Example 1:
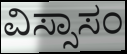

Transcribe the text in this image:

ವಿಸ್ಸಾಸಂ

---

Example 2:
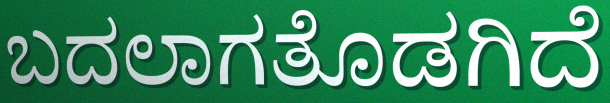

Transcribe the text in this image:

ಬದಲಾಗತೊಡಗಿದೆ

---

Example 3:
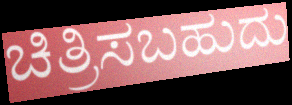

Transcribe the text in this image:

ಚಿತ್ರಿಸಬಹುದು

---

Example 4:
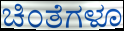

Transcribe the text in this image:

ಚಿಂತೆಗಳೂ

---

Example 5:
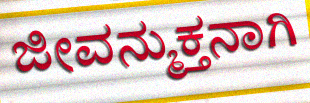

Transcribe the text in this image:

ಜೀವನ್ಮುಕ್ತನಾಗಿ